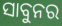
ସାବୁନର